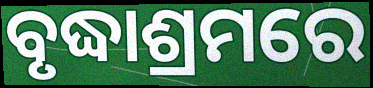
ବୃଦ୍ଧାଶ୍ରମରେ